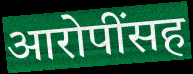
आरोपींसह